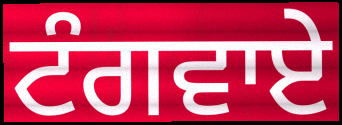
ਟੰਗਵਾਏ